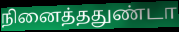
நினைத்ததுண்டா